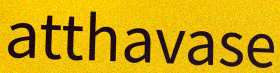
atthavase